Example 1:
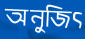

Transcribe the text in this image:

অনুজিৎ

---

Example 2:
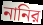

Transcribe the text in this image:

নানির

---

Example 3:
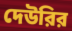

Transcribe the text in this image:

দেউরির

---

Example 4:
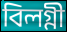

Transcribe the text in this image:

বিলগ্নী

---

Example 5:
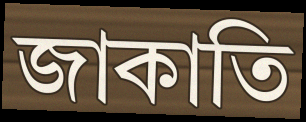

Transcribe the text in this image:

জাকাতি